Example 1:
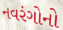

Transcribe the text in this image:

નવરંગોનો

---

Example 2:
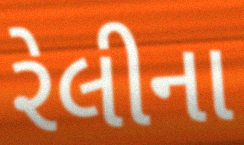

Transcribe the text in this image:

રેલીના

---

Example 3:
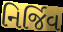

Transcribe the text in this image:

નિર્જિવ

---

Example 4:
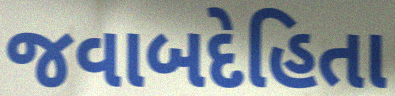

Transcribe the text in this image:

જવાબદેહિતા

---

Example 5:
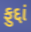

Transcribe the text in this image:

ફુદ્દાં